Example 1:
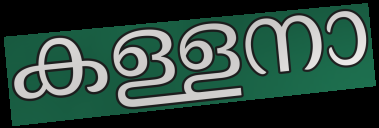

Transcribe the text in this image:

കള്ളനാ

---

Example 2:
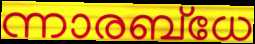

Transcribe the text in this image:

ന്നാരബ്ധേ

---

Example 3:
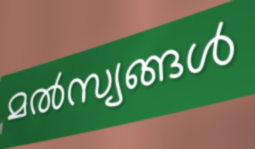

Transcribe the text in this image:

മൽസ്യങ്ങൾ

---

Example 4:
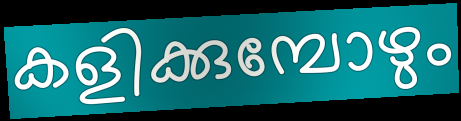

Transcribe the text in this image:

കളിക്കുമ്പോഴും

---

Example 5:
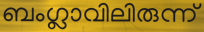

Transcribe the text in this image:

ബംഗ്ലാവിലിരുന്ന്